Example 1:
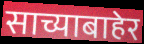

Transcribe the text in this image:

साच्याबाहेर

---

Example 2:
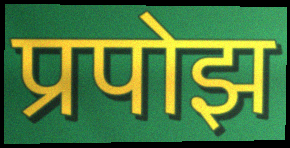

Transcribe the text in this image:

प्रपोझ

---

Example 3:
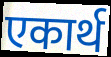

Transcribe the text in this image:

एकार्थ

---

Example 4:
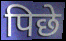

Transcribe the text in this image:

पिछे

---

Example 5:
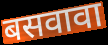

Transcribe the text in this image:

बसवावा